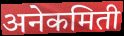
अनेकमिती